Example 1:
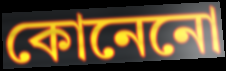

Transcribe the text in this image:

কোনেনো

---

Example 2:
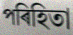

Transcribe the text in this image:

পৰিহিতা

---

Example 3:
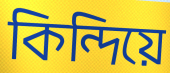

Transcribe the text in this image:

কিন্দিয়ে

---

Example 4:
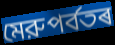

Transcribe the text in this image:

মেৰুপৰ্বতৰ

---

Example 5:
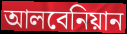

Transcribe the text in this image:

আলবেনিয়ান